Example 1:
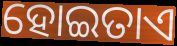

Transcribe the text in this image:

ହୋଇତାଏ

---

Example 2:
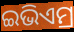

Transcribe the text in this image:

ଇଭିଏମ୍ର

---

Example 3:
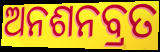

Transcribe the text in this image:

ଅନଶନବ୍ରତ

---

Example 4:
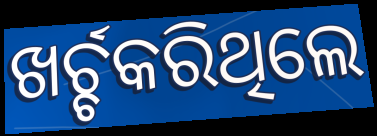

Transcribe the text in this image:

ଖର୍ଚ୍ଚକରିଥିଲେ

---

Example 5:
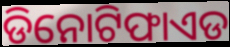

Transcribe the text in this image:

ଡିନୋଟିଫାଏଡ